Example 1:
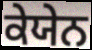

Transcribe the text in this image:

ਕੇਯੇਨ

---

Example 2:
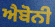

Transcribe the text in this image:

ਐਬੋਨੀ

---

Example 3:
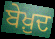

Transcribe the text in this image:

ਬੇਖ਼ੁਦ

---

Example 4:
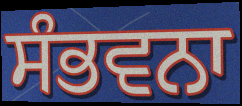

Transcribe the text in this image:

ਸੰਭਵਨਾ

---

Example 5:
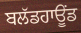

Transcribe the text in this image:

ਬਲੱਡਹਾਊਂਡ